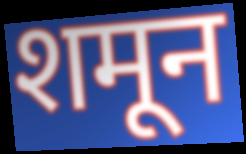
शमून